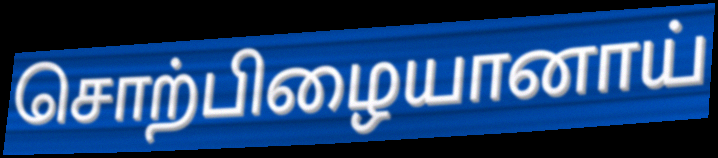
சொற்பிழையானாய்